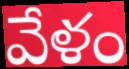
వేళం